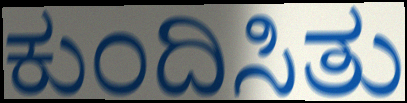
ಕುಂದಿಸಿತು